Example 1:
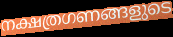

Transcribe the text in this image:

നക്ഷത്രഗണങ്ങളുടെ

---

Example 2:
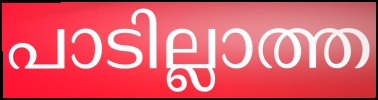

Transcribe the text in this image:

പാടില്ലാത്ത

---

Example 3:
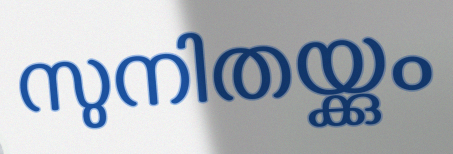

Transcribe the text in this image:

സുനിതയ്ക്കും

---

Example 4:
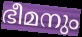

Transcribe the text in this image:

ഭീമനും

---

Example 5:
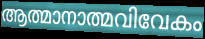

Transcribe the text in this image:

ആത്മാനാത്മവിവേകം